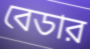
বেডার